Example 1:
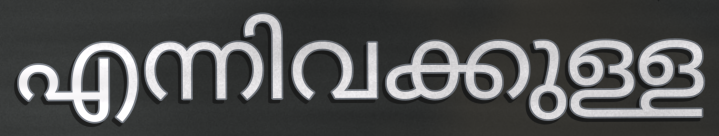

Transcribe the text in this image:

എന്നിവക്കുള്ള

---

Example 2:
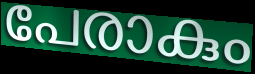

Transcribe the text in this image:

പേരാകും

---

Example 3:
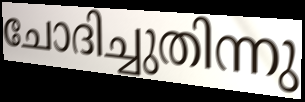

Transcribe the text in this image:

ചോദിച്ചുതിന്നു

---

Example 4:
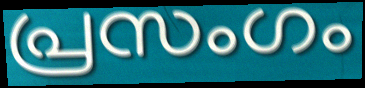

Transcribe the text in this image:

പ്രസംഗം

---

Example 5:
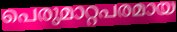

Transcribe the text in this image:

പെരുമാറ്റപരമായ